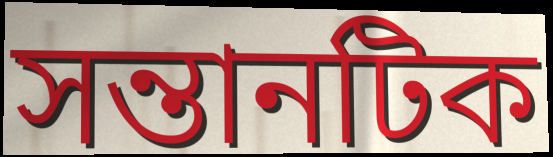
সন্তানটিক